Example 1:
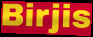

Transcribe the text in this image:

Birjis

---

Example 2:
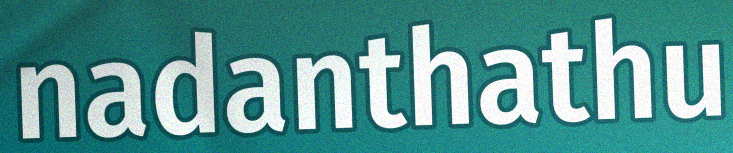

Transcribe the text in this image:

nadanthathu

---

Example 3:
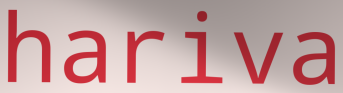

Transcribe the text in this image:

hariva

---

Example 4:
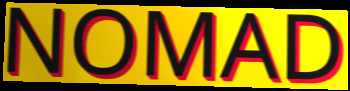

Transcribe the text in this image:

NOMAD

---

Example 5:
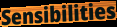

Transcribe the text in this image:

Sensibilities